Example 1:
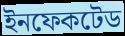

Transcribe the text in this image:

ইনফেকটেড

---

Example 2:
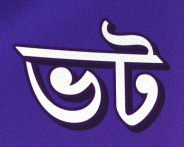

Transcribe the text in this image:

ভট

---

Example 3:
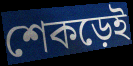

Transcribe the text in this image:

শেকড়েই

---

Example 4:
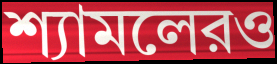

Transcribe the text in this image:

শ্যামলেরও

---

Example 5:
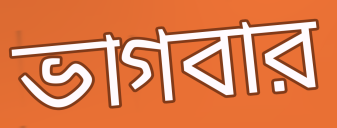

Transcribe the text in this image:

ভাগবার